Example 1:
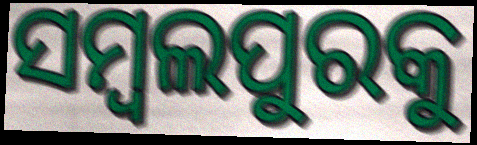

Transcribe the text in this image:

ସମ୍ୱଲପୁରକୁ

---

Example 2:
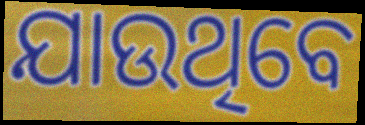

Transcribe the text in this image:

ଯାଉଥିବେ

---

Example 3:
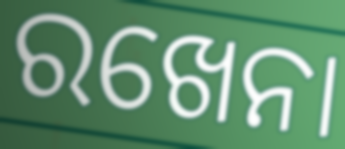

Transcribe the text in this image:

ରଖେନା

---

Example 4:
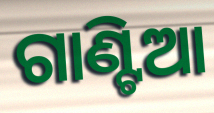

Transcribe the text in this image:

ଗାଣ୍ଟିଆ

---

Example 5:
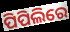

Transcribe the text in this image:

ପିପିଲିରେ